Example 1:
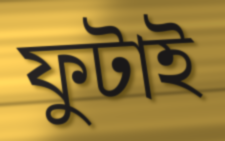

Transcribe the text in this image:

ফুটাই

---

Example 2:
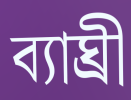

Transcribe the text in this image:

ব্যাঘ্ৰী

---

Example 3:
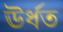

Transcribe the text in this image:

ঊৰ্ধত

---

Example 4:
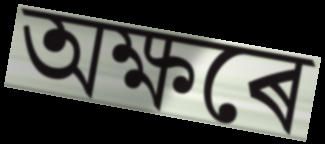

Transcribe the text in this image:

অক্ষৰে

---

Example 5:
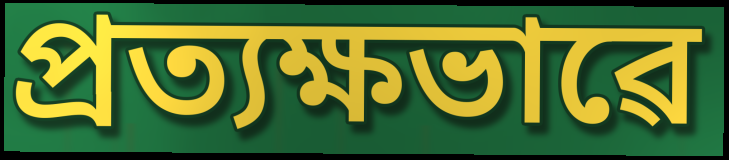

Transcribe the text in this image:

প্ৰত্যক্ষভাৱে